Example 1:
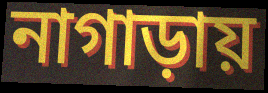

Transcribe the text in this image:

নাগাড়ায়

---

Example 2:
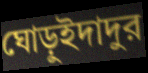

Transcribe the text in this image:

ঘোড়ুইদাদুর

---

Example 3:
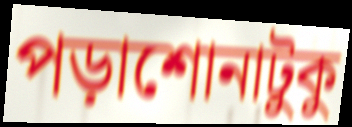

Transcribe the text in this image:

পড়াশোনাটুকু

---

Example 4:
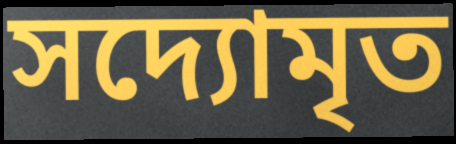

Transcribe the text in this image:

সদ্যোমৃত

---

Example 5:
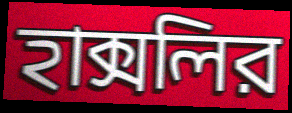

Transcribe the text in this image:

হাক্সলির